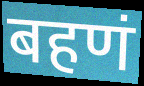
बहणं